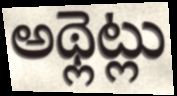
అథ్లెట్లు